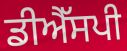
ਡੀਐੱਸਪੀ